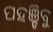
ପହଞ୍ଚିବୁ